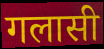
गलासी